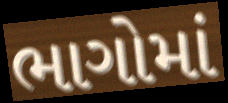
ભાગોમાં